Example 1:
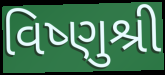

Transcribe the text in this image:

વિષ્ણુશ્રી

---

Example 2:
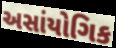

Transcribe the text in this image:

અસાંયોગિક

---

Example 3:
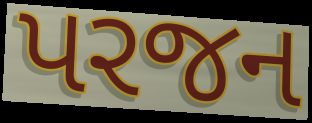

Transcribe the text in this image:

પરજન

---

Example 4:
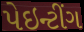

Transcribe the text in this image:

પેઇન્ટીંગ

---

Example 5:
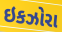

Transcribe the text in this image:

ઇકઝોરા